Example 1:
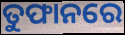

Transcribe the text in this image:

ତୁଫାନରେ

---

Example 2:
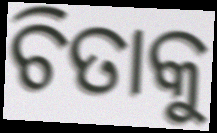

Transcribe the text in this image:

ଚିତାକୁ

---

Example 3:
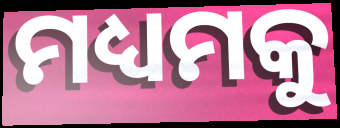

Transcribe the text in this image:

ମଧ୍ୟମକୁ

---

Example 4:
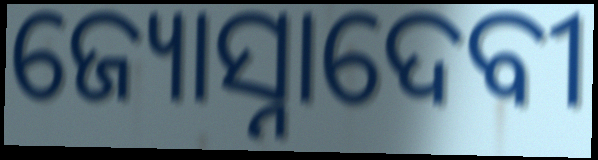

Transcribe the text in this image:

ଜ୍ୟୋସ୍ନାଦେବୀ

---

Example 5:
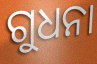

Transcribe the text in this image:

ଗୁଧନା